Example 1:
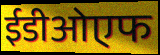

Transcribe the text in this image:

ईडीओएफ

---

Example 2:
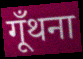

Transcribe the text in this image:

गूँथना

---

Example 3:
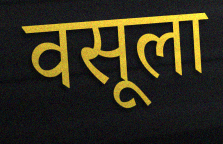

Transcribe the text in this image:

वसूला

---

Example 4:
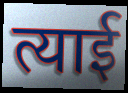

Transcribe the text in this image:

त्याई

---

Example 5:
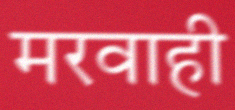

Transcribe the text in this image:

मरवाही